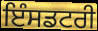
ਇੰਸਡਟਰੀ